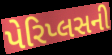
પેરિપ્લસની